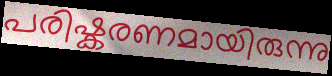
പരിഷ്കരണമായിരുന്നു